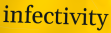
infectivity